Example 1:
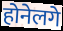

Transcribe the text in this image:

होनेलगे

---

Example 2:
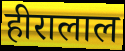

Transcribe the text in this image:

हीरालाल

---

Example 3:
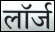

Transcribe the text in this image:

लॉर्ज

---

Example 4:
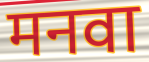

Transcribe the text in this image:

मनवा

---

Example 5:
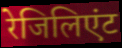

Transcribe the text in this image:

रेजिलिएंट